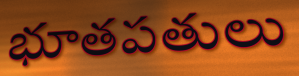
భూతపతులు